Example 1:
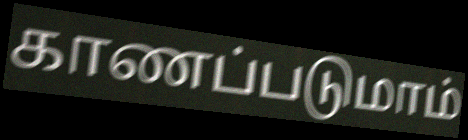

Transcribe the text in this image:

காணப்படுமாம்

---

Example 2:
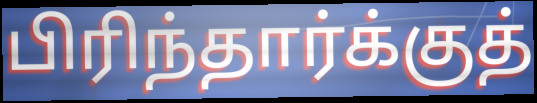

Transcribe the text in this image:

பிரிந்தார்க்குத்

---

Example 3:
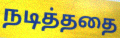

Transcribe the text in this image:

நடித்ததை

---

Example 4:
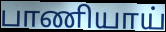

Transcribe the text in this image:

பாணியாய்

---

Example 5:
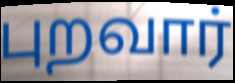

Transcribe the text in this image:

புறவார்